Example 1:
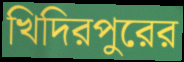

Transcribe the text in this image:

খিদিরপুরের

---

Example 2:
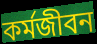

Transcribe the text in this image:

কর্মজীবন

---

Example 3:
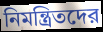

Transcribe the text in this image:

নিমন্ত্রিতদের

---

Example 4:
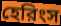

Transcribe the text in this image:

হেরিংস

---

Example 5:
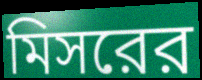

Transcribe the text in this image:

মিসরের